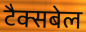
टैक्सबेल